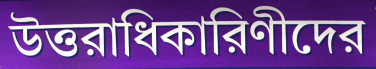
উত্তরাধিকারিণীদের